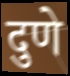
दुणे